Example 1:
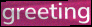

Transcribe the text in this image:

greeting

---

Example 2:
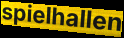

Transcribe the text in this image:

spielhallen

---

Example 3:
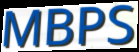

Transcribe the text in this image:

MBPS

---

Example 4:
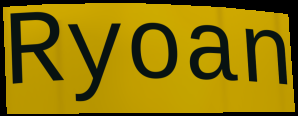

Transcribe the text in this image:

Ryoan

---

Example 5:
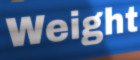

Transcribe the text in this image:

Weight